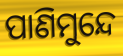
ପାଣିମୁନ୍ଦେ